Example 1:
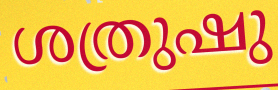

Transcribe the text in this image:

ശത്രുഷു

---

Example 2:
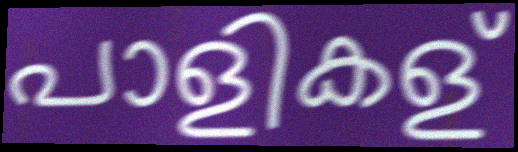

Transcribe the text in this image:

പാളികള്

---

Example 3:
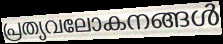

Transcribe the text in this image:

പ്രത്യവലോകനങ്ങൾ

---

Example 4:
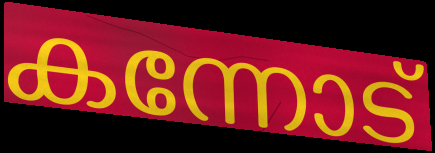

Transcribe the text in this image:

കന്നോട്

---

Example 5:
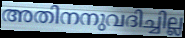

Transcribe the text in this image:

അതിനനുവദിച്ചില്ല